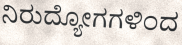
ನಿರುದ್ಯೋಗಗಳಿಂದ